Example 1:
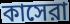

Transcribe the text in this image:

কাসেরা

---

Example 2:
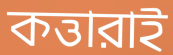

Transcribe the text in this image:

কত্তারাই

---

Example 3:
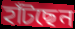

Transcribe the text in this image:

হাঁটছেন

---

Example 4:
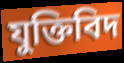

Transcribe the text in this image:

যুক্তিবিদ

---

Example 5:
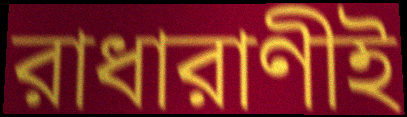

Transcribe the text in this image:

রাধারাণীই